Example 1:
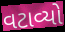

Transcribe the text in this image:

વટાવ્યો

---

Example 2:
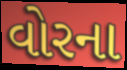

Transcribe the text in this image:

વોરના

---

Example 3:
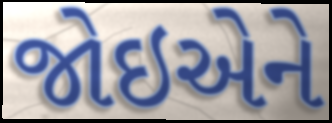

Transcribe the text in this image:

જોઇએને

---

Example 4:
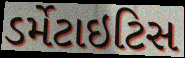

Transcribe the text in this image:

ડર્મેટાઇટિસ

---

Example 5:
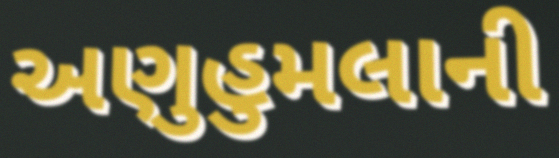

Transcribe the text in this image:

અણુહુમલાની